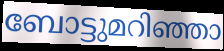
ബോട്ടുമറിഞ്ഞാ